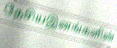
தேசியஇனங்களின்